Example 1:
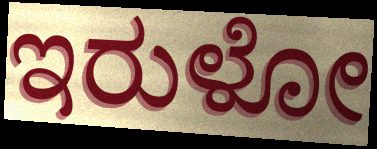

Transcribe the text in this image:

ಇರುಳೋ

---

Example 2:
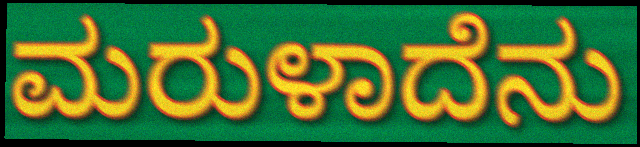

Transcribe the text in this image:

ಮರುಳಾದೆನು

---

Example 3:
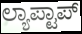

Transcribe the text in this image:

ಲ್ಯಾಪ್ಟಾಪ್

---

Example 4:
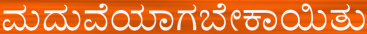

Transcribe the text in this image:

ಮದುವೆಯಾಗಬೇಕಾಯಿತು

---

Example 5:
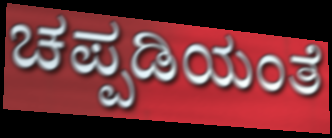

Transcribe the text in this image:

ಚಪ್ಪಡಿಯಂತೆ